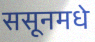
ससूनमधे